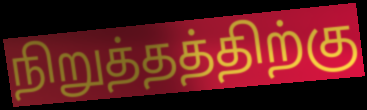
நிறுத்தத்திற்கு